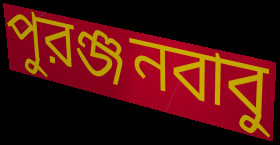
পুরঞ্জনবাবু